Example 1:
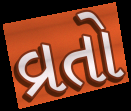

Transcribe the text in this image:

વ્રતો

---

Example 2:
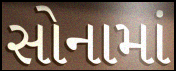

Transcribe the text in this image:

સોનામાં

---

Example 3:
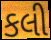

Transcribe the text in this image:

કલી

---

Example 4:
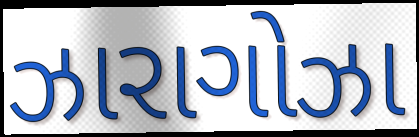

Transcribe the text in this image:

ઝારાગોઝા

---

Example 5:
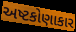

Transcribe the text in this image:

અષ્ટકોણાકાર